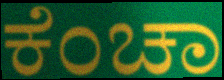
ಕೆಂಚಾ